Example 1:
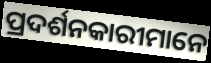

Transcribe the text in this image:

ପ୍ରଦର୍ଶନକାରୀମାନେ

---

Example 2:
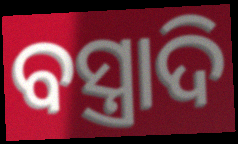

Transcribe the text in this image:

ବସ୍ତ୍ରାଦି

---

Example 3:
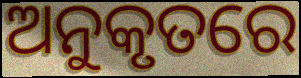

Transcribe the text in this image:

ଅନୁକୃତରେ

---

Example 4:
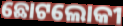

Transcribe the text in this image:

ଛୋଟଲୋକୀ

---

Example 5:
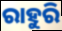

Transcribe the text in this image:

ରାହୁରି